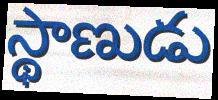
స్థాణుడు